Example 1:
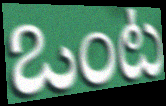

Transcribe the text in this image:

ఒంట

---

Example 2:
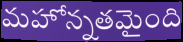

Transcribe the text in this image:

మహోన్నతమైంది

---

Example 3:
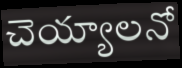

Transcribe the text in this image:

చెయ్యాలనో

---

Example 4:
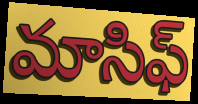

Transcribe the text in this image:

మాసిఫ్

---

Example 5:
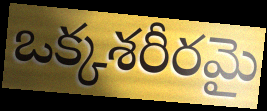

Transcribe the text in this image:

ఒక్కశరీరమై